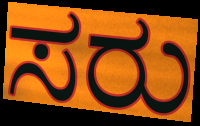
ಸರು